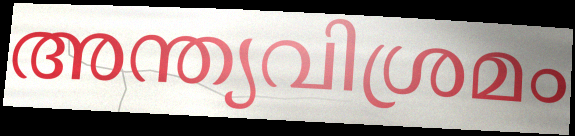
അന്ത്യവിശ്രമം